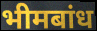
भीमबांध